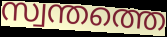
സ്വന്തത്തെ